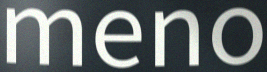
meno